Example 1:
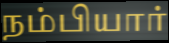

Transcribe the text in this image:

நம்பியார்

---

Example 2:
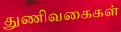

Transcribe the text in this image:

துணிவகைகள்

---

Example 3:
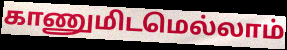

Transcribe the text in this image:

காணுமிடமெல்லாம்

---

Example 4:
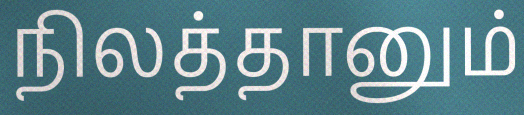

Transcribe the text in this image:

நிலத்தானும்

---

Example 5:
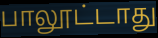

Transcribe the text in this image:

பாலூட்டாது